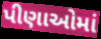
પીણાઓમાં